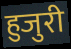
हुजुरी